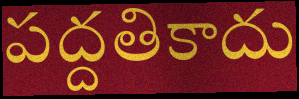
పద్దతికాదు